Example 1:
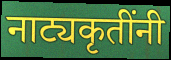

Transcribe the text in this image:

नाट्यकृतींनी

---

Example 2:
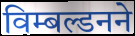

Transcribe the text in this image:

विम्बल्डनने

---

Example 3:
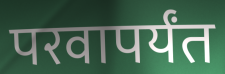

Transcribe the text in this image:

परवापर्यंत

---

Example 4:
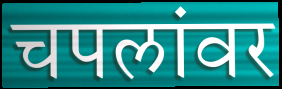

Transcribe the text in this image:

चपलांवर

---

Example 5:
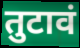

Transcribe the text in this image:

तुटावं